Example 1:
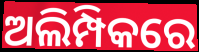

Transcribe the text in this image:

ଅଲିମ୍ପିକରେ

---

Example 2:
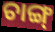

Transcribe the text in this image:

ଚାଙ୍ଗ୍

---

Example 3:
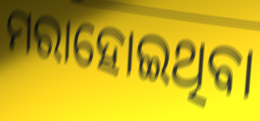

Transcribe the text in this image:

ମରାହୋଇଥିବା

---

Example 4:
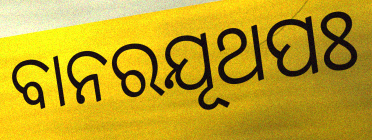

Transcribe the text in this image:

ବାନରଯୂଥପଃ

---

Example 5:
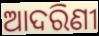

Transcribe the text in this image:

ଆଦରିଣୀ